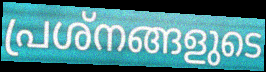
പ്രശ്നങ്ങളുടെ